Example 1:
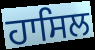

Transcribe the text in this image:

ਹਾਸਿਲ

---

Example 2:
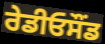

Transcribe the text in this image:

ਰੇਡੀਓਸੌਂਡ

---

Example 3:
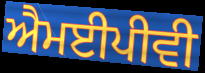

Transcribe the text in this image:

ਐਮਈਪੀਵੀ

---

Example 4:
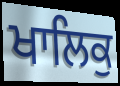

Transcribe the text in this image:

ਖਾਲਿਕੁ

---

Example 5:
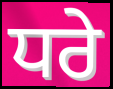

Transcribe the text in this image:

ਧਰੇ